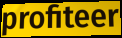
profiteer